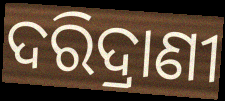
ଦରିଦ୍ରାଣୀ